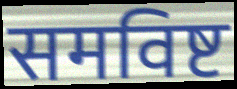
समविष्ट